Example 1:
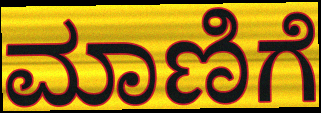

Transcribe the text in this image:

ಮಾಣಿಗೆ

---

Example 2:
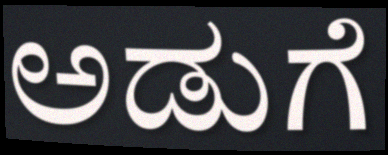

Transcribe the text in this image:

ಅಡುಗೆ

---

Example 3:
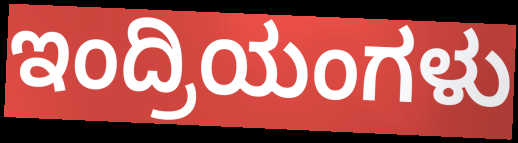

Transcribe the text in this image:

ಇಂದ್ರಿಯಂಗಳು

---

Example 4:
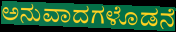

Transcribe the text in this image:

ಅನುವಾದಗಳೊಡನೆ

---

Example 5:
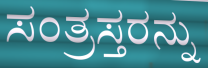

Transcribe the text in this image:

ಸಂತ್ರಸ್ತರನ್ನು